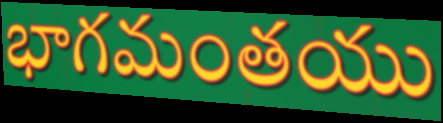
భాగమంతయు